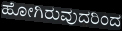
ಹೋಗಿರುವುದರಿಂದ